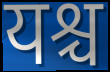
यश्च